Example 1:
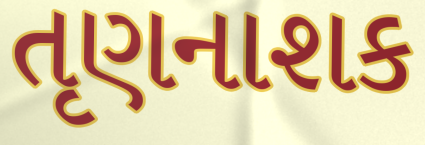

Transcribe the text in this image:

તૃણનાશક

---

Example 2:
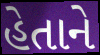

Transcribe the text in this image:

હેતાને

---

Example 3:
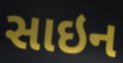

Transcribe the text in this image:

સાઇન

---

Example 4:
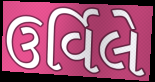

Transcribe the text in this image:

ઉર્વિલે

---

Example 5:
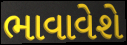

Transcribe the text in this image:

ભાવાવેશે